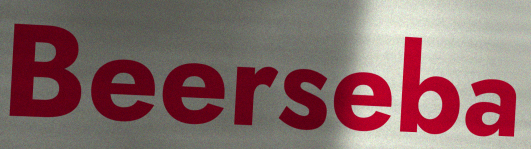
Beerseba